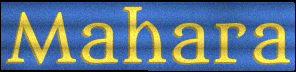
Mahara